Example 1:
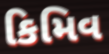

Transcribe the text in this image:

કિમિવ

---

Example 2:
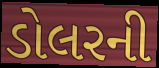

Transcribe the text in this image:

ડોલરની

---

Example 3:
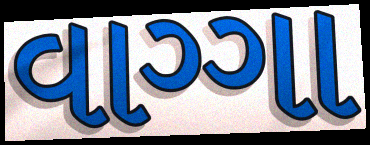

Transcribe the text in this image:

વાગ્ગા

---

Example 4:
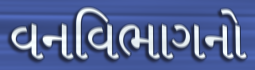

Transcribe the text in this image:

વનવિભાગનો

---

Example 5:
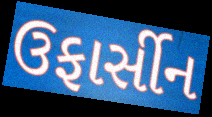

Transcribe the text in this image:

ઉફાર્સીન